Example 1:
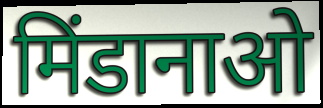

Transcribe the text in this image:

मिंडानाओ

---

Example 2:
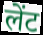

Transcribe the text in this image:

लेंट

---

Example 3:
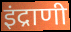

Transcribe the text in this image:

इंद्राणी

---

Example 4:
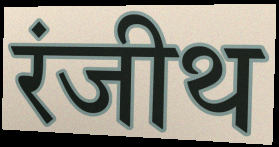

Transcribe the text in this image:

रंजीथ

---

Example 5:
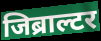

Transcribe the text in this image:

जिब्राल्टर